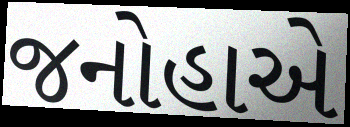
જનોહાએ